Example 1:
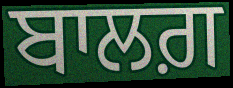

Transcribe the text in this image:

ਬਾਲਗ਼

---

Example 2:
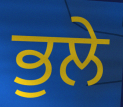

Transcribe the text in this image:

ਭੁਲੇ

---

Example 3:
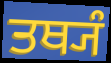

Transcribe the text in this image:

ਤਥ੍ਯੰ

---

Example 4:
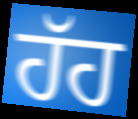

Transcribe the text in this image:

ਹੱਹ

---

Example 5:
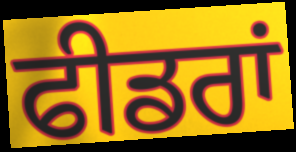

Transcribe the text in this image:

ਫੀਡਰਾਂ